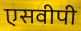
एसवीपी